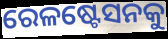
ରେଳଷ୍ଟେସନକୁ